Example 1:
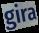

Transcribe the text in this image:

gira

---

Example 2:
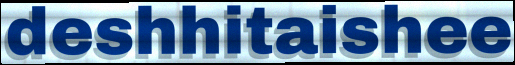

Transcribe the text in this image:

deshhitaishee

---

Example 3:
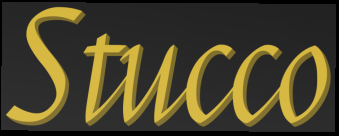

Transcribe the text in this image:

Stucco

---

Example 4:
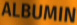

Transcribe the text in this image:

ALBUMIN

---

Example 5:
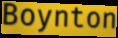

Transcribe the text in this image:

Boynton